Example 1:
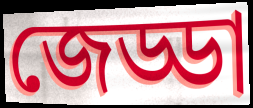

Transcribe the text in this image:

জেড্ডা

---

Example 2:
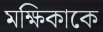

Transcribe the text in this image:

মক্ষিকাকে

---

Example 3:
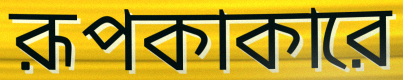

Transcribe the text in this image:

রূপকাকারে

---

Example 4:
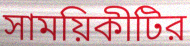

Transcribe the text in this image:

সাময়িকীটির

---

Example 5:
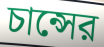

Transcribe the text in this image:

চান্সের